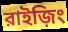
রাইজ়িং